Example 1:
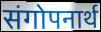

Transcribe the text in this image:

संगोपनार्थ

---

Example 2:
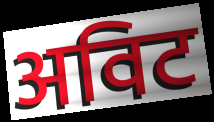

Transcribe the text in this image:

अविट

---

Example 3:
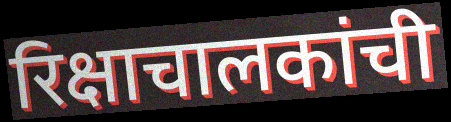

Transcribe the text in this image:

रिक्षाचालकांची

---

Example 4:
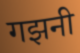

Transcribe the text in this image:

गझनी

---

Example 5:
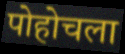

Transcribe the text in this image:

पोहोचला